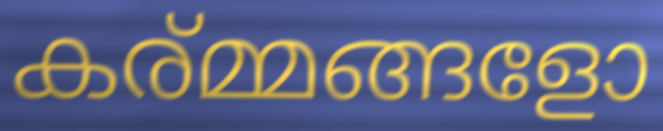
കര്മ്മങ്ങളോ